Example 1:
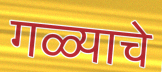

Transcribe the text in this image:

गळ्याचे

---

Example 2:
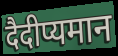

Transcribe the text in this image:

दैदीप्यमान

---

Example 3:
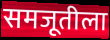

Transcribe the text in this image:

समजूतीला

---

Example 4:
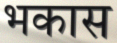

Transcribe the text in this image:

भकास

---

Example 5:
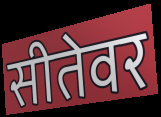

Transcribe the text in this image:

सीतेवर